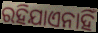
ରହିଯାଏନାହିଁ